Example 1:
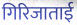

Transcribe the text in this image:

गिरिजाताई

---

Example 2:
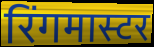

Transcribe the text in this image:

रिंगमास्टर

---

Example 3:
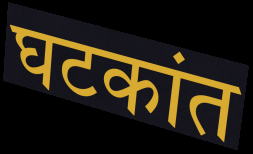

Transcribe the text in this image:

घटकांत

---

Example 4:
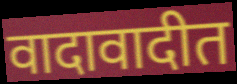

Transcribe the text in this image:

वादावादीत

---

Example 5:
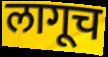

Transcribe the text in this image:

लागूच